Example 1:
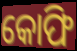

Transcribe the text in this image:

କୋଫି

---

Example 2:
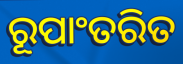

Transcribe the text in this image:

ରୂପାଂତରିତ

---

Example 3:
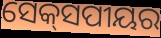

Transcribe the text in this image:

ସେକ୍‌ସପୀୟର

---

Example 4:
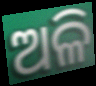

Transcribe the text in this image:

ଅଳି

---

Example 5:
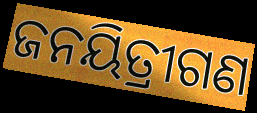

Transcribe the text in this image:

ଜନୟିତ୍ରୀଗଣ